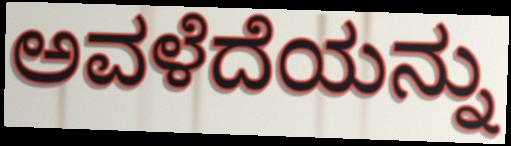
ಅವಳೆದೆಯನ್ನು